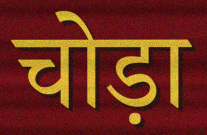
चोड़ा